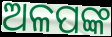
ଅଳପଙ୍କ